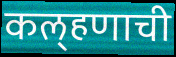
कल्हणाची